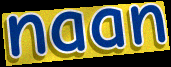
naan